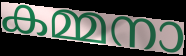
കമ്മനാ